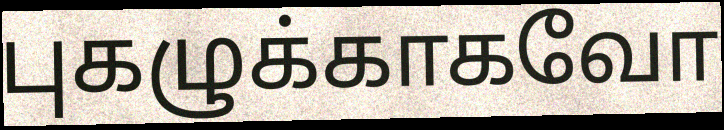
புகழுக்காகவோ